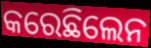
କରେଛିଲେନ